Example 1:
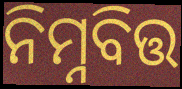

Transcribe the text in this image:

ନିମ୍ନବିତ୍ତ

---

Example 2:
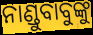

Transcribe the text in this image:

ନାଣ୍ଡୁବାବୁଙ୍କୁ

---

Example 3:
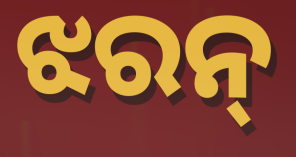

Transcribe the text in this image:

ଝରନ୍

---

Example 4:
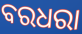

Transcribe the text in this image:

ବରଧରା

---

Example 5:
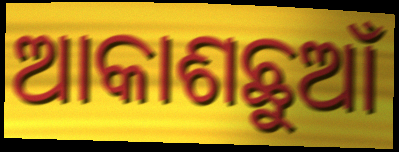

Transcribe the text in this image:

ଆକାଶଛୁଆଁ